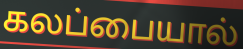
கலப்பையால்